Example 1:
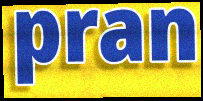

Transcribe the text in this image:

pran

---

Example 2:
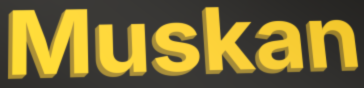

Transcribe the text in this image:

Muskan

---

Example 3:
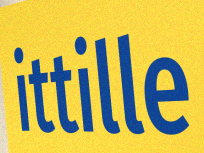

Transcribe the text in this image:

ittille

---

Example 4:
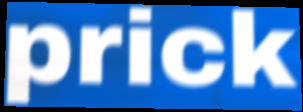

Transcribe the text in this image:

prick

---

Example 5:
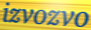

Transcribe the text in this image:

izvozvo